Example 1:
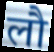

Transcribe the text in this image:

लौ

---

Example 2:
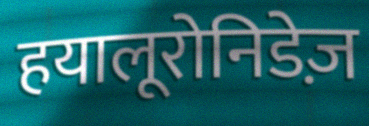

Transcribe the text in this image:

हयालूरोनिडेज़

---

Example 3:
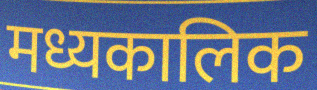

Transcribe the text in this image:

मध्यकालिक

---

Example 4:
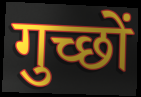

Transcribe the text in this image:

गुच्छों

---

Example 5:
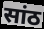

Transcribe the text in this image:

सांठ